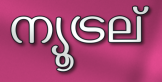
ന്യൂട്രല്